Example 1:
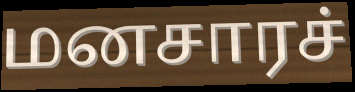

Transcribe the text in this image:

மனசாரச்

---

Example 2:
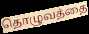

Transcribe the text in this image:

தொழுவத்தை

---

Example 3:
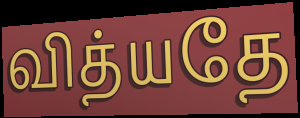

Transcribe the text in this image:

வித்யதே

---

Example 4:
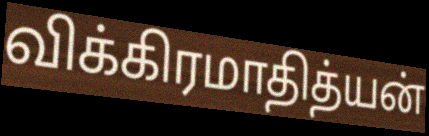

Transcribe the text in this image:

விக்கிரமாதித்யன்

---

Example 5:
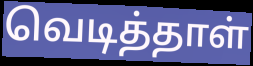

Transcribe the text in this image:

வெடித்தாள்